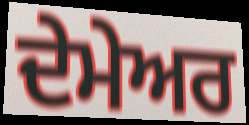
ਦੇਮੇਅਰ